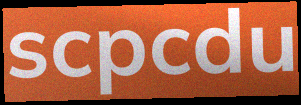
scpcdu